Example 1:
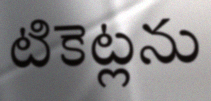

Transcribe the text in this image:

టికెట్లను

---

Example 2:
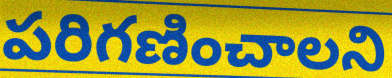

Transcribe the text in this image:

పరిగణించాలని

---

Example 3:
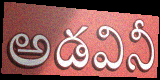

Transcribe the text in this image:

అడవినీ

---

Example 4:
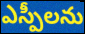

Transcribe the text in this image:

ఎస్పీలను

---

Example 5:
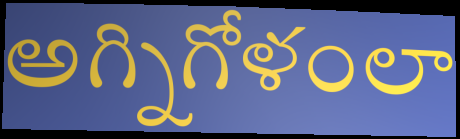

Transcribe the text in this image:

అగ్నిగోళంలా